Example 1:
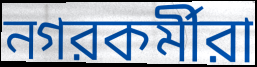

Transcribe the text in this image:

নগরকর্মীরা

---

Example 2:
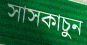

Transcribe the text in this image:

সাসকাচুন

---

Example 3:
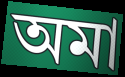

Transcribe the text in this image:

অমা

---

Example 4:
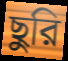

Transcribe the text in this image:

ছুরি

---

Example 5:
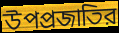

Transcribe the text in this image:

উপপ্রজাতির